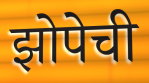
झोपेची